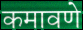
कमावणे